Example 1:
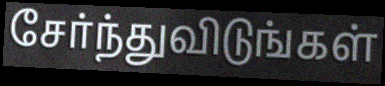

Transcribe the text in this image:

சேர்ந்துவிடுங்கள்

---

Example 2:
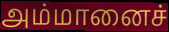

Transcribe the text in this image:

அம்மானைச்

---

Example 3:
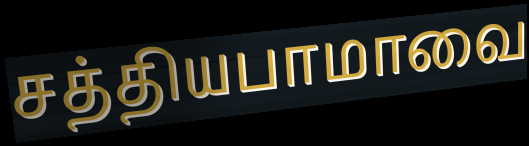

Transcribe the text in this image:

சத்தியபாமாவை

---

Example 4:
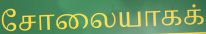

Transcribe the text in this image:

சோலையாகக்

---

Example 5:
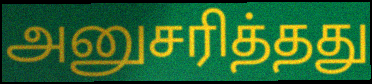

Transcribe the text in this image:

அனுசரித்தது